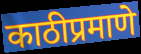
काठीप्रमाणे